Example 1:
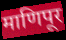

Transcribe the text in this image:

माणिपूर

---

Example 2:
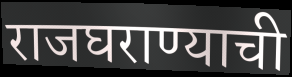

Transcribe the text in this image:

राजघराण्याची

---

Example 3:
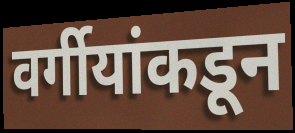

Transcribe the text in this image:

वर्गीयांकडून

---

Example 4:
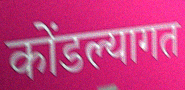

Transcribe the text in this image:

कोंडल्यागत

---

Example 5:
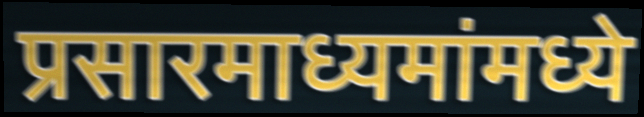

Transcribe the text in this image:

प्रसारमाध्यमांमध्ये